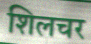
शिलचर